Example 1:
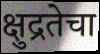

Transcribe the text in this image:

क्षुद्रतेचा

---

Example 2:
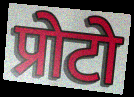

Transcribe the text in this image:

प्रोटो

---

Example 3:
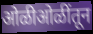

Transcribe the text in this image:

ओळीओळींतून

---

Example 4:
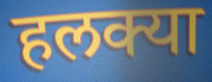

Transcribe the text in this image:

हलक्या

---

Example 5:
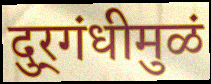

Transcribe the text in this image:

दुर्गंधीमुळं